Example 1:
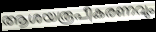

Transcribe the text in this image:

ആശയരൂപീകരണവും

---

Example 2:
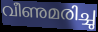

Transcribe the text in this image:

വീണുമരിച്ചു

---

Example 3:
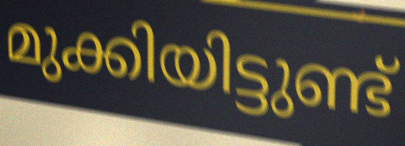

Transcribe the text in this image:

മുക്കിയിട്ടുണ്ട്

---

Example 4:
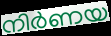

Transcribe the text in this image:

നിർണയ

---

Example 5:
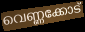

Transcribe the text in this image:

വെണ്ണക്കോട്